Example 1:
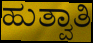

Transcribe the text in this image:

ಹುತ್ವಾತಿ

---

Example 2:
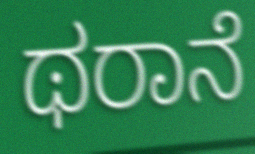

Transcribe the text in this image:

ಥರಾನೆ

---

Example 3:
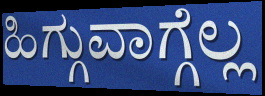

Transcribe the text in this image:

ಹಿಗ್ಗುವಾಗ್ಗೆಲ್ಲ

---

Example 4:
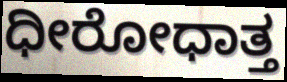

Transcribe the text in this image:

ಧೀರೋಧಾತ್ತ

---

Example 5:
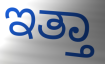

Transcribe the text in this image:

ಇತ್ತಾ